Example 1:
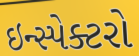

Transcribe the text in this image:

ઇન્સ્પેક્ટરો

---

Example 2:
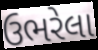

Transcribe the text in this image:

ઉભરેલા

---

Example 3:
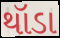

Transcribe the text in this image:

થૉડા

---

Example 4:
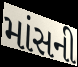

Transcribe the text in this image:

માંસની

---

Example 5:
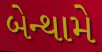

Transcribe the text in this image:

બેન્થામે